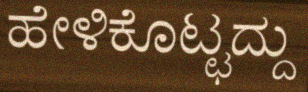
ಹೇಳಿಕೊಟ್ಟದ್ದು